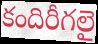
కందిరీగలై